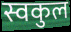
स्वकुल